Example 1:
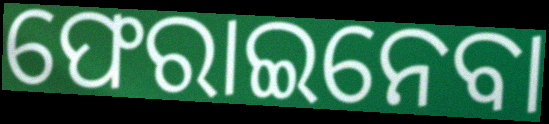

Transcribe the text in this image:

ଫେରାଇନେବା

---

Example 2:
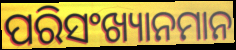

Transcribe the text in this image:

ପରିସଂଖ୍ୟାନମାନ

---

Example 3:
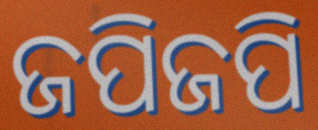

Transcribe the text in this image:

ଜପିଜପି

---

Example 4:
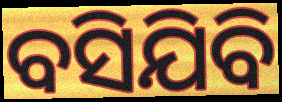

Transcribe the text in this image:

ବସିଯିବି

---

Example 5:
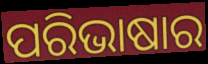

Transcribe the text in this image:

ପରିଭାଷାର